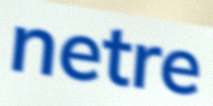
netre